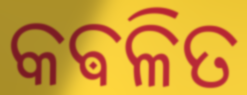
କଵଳିତ